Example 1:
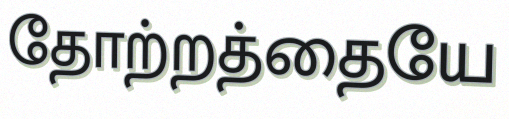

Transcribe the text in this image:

தோற்றத்தையே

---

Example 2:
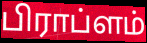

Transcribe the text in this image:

பிராப்ளம்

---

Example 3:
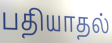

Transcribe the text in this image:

பதியாதல்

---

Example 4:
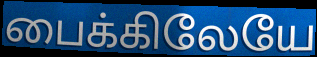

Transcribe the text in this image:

பைக்கிலேயே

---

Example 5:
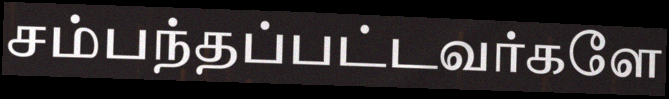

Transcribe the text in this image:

சம்பந்தப்பட்டவர்களே